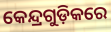
କେନ୍ଦ୍ରଗୁଡ଼ିକରେ